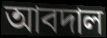
আবদাল